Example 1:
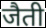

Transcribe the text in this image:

जैती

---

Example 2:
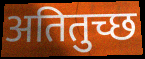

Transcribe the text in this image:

अतितुच्छ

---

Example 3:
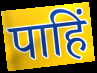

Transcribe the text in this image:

पाहिं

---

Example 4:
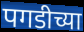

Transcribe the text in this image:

पगडीच्या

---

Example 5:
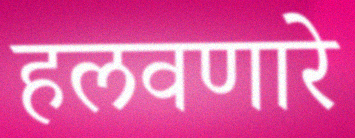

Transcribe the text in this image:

हलवणारे